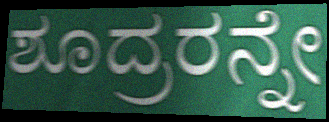
ಶೂದ್ರರನ್ನೇ